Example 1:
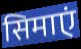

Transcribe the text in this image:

सिमाएं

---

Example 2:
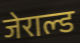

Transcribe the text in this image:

जेराल्ड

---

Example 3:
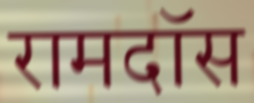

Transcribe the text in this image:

रामदॉस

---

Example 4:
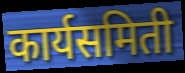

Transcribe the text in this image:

कार्यसमिती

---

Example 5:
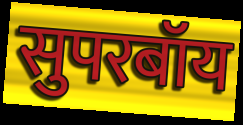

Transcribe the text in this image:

सुपरबॉय